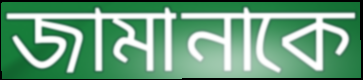
জামানাকে